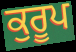
ਕੁਰੂਪ